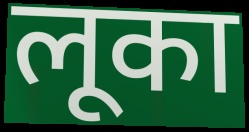
लूका